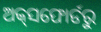
ଅକ୍‌ସଫୋର୍ଡରୁ